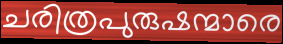
ചരിത്രപുരുഷന്മാരെ